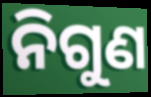
ନିଗୁଣ